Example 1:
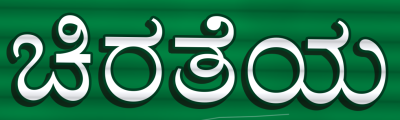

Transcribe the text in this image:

ಚಿರತೆಯ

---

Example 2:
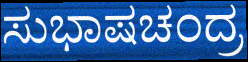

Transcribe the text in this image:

ಸುಭಾಷಚಂದ್ರ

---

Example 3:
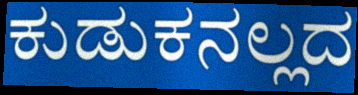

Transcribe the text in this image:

ಕುಡುಕನಲ್ಲದ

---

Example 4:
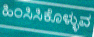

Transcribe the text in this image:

ಹಿಂಸಿಸಿಕೊಳ್ಳುವ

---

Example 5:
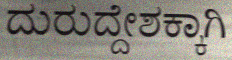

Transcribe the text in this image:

ದುರುದ್ದೇಶಕ್ಕಾಗಿ